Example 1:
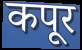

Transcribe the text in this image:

कपूर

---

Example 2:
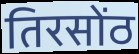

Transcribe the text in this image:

तिरसोंठ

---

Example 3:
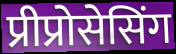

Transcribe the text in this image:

प्रीप्रोसेसिंग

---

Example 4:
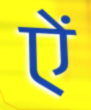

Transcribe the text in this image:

ऐं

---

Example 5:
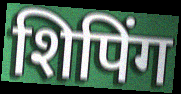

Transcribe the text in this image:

शिपिंग